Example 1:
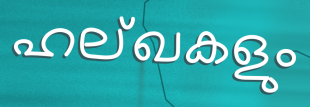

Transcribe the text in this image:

ഹല്ഖകളും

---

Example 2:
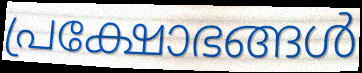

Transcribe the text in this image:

പ്രക്ഷോഭങ്ങൾ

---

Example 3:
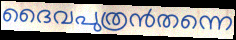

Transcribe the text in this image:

ദൈവപുത്രൻതന്നെ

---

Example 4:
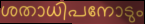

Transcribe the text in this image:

ശതാധിപനോടും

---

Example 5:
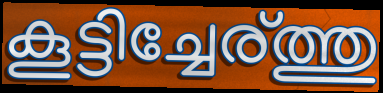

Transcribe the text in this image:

കൂട്ടിച്ചേര്ത്തു